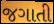
જગાતી